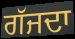
ਗੱਜਦਾ